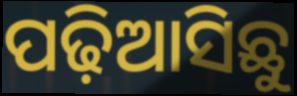
ପଢ଼ିଆସିଛୁ